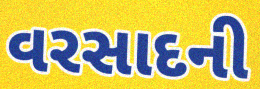
વરસાદની